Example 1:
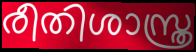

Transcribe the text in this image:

രീതിശാസ്ത്ര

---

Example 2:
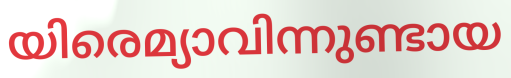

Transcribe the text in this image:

യിരെമ്യാവിന്നുണ്ടായ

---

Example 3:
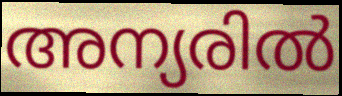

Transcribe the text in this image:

അന്യരിൽ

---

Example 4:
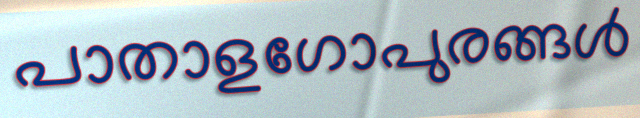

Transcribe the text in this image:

പാതാളഗോപുരങ്ങൾ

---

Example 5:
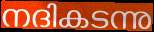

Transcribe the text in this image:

നദികടന്നു